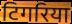
टिगरिया